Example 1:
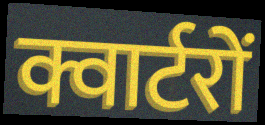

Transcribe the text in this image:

क्वार्टरों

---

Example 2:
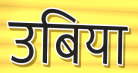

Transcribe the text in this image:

उबिया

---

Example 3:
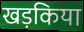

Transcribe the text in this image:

खड़किया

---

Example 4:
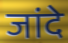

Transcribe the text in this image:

जांदे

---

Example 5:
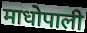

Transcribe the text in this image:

माधोपाली